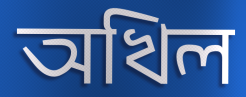
অখিল